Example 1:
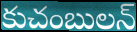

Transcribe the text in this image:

కుచంబులన్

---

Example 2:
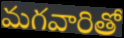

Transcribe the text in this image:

మగవారితో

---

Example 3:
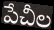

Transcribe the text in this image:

పేచీల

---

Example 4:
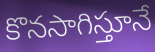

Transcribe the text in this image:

కొనసాగిస్తూనే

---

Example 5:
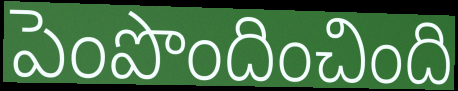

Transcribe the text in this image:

పెంపొందించింది